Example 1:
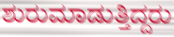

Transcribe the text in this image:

ಶುರುಮಾಡುತ್ತಿದ್ದರು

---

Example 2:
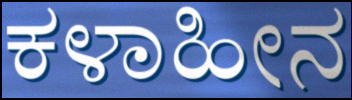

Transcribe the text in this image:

ಕಳಾಹೀನ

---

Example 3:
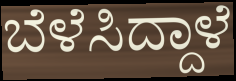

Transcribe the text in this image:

ಬೆಳೆಸಿದ್ದಾಳೆ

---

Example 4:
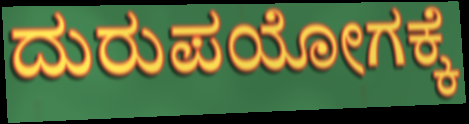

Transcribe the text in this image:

ದುರುಪಯೋಗಕ್ಕೆ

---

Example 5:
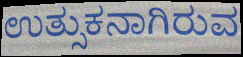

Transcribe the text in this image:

ಉತ್ಸುಕನಾಗಿರುವ